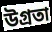
উগ্রতা